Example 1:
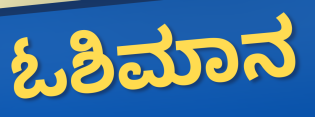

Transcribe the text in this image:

ಓಶಿಮಾನ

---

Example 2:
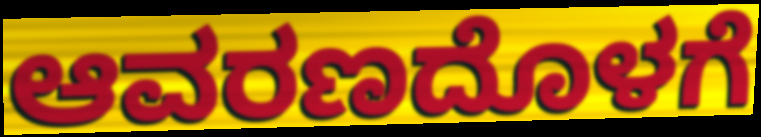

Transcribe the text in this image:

ಆವರಣದೊಳಗೆ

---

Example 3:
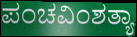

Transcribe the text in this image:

ಪಂಚವಿಂಶತ್ಯಾ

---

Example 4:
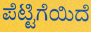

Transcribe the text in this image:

ಪೆಟ್ಟಿಗೆಯಿದೆ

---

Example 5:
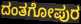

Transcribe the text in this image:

ದಂತಗೋಪುರ